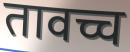
तावच्च